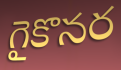
గైకొనర